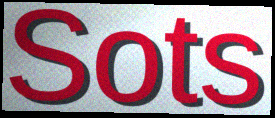
Sots